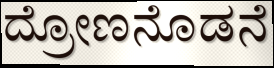
ದ್ರೋಣನೊಡನೆ